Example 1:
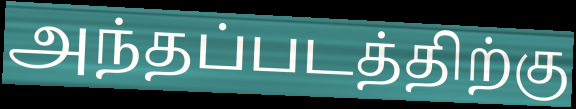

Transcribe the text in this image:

அந்தப்படத்திற்கு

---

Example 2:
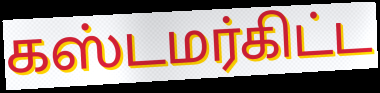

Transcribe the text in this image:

கஸ்டமர்கிட்ட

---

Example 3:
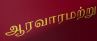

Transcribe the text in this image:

ஆரவாரமற்று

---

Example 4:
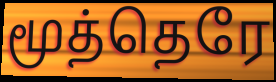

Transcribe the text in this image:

மூத்தெரே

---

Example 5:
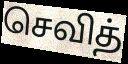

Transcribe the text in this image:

செவித்